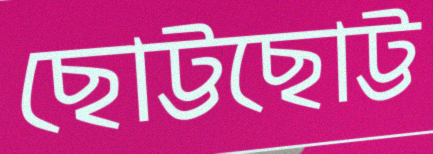
ছোট্টছোট্ট